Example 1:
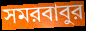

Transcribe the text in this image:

সমরবাবুর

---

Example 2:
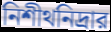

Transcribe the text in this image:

নিশীথনিদ্রার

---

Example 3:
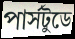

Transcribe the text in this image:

পার্সটুডে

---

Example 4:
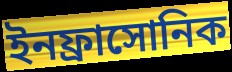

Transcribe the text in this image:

ইনফ্রাসোনিক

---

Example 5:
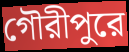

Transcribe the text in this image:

গৌরীপুরে